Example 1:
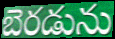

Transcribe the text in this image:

బెరడును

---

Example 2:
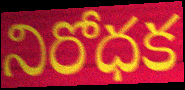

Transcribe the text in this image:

నిరోధక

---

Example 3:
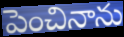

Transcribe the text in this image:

పెంచినాను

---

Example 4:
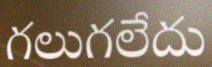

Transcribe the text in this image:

గలుగలేదు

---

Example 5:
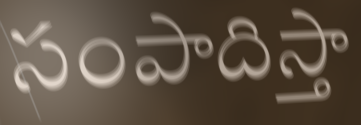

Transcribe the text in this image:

సంపాదిస్తా